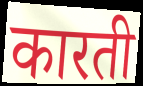
कारती